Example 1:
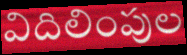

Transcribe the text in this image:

విదిలింపుల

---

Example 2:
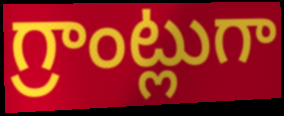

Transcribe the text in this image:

గ్రాంట్లుగా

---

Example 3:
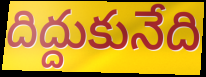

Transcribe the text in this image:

దిద్దుకునేది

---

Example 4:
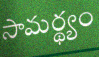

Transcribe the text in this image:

సామర్థ్యం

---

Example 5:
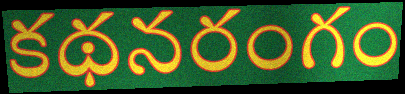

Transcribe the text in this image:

కథనరంగం